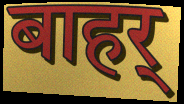
बाहर्